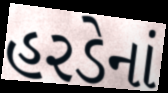
હરડેનાં